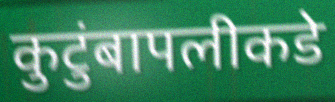
कुटुंबापलीकडे